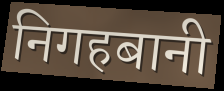
निगहबानी